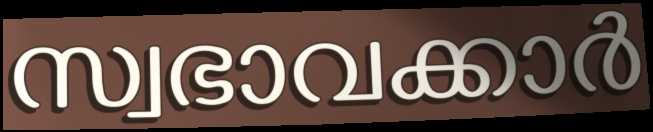
സ്വഭാവക്കാർ